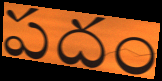
పదం